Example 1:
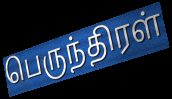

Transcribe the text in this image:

பெருந்திரள்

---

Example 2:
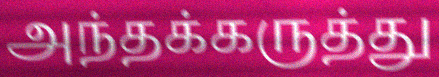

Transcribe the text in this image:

அந்தக்கருத்து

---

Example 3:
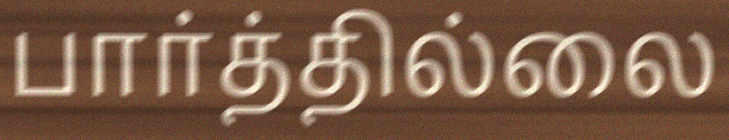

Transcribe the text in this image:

பார்த்தில்லை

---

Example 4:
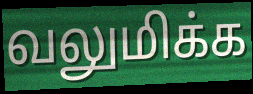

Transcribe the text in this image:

வலுமிக்க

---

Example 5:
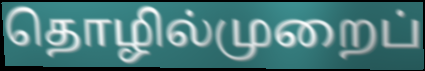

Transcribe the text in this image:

தொழில்முறைப்